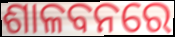
ଶାଳବନରେ